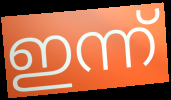
ഇന്ന്